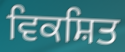
ਵਿਕਸ਼ਿਤ